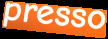
presso